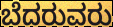
ಬೆದರುವರು